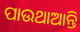
ପାଉଥାଆନ୍ତି